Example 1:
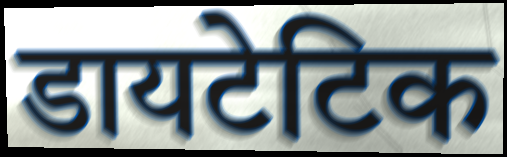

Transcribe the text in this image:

डायटेटिक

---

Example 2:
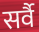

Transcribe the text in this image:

सर्वै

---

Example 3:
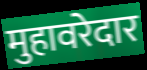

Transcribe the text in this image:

मुहावरेदार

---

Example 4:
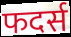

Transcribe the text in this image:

फदर्स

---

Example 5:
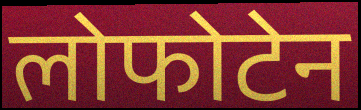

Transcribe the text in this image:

लोफोटेन